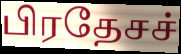
பிரதேசச்